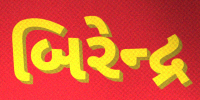
બિરેન્દ્ર